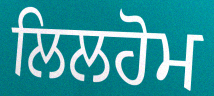
ਲਿਲਹੋਮ